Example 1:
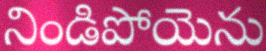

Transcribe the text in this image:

నిండిపోయెను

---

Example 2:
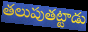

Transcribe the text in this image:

తలుపుతట్టాడు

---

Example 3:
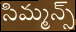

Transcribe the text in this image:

సిమ్మన్స్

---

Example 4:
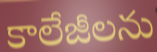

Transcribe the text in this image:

కాలేజీలను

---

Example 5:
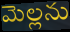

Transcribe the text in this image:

మెల్లను